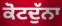
ਕੋਟਦੁੱਨਾ